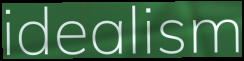
idealism